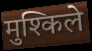
मुश्किले